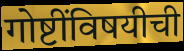
गोष्टींविषयीची